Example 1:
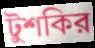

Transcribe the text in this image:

টুশকির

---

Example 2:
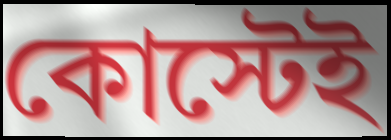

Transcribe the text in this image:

কোস্টেই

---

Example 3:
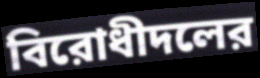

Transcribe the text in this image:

বিরোধীদলের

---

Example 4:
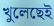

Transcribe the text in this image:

খুলেছেই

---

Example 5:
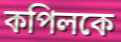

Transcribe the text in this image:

কপিলকে